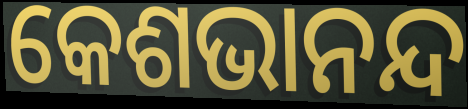
କେଶଭାନନ୍ଦ